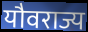
यौवराज्य